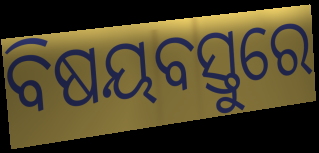
ବିଷୟବସ୍ତୁରେ